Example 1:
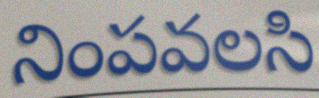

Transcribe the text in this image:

నింపవలసి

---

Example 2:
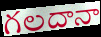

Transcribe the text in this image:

గలదానా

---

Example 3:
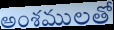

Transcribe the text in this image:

అంశములతో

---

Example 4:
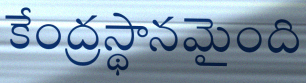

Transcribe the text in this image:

కేంద్రస్థానమైంది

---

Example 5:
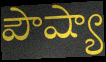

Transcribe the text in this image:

పౌష్యా